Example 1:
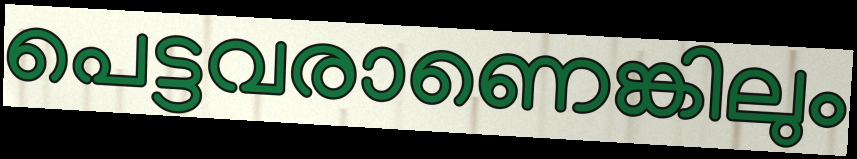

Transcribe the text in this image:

പെട്ടവരാണെങ്കിലും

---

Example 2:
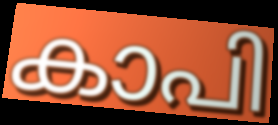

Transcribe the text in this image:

കാപി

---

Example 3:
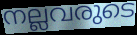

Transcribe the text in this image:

നല്ലവരുടെ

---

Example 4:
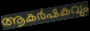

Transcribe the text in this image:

ആകർഷകവും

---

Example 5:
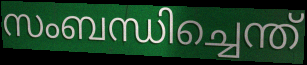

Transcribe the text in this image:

സംബന്ധിച്ചെന്ത്